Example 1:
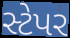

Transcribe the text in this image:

સ્ટેપર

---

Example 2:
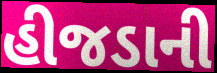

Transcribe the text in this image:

હીજડાની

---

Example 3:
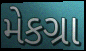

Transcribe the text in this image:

મેકગ્રા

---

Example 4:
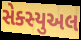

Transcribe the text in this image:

સેક્સ્યુઅલ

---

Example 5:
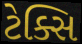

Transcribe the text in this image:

ટેક્સિ